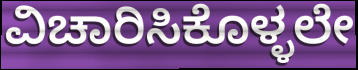
ವಿಚಾರಿಸಿಕೊಳ್ಳಲೇ